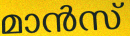
മാൻസ്